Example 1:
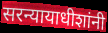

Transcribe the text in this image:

सरन्यायाधीशांनी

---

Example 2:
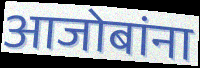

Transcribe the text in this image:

आजोबांना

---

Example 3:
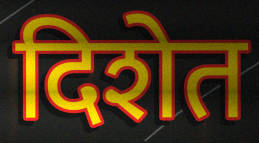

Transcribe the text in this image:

दिशेत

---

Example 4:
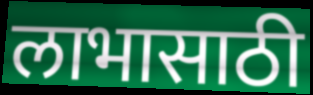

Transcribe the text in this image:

लाभासाठी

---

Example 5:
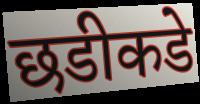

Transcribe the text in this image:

छडीकडे